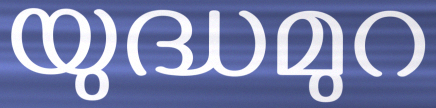
യുദ്ധമുറ